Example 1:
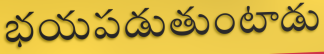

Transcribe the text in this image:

భయపడుతుంటాడు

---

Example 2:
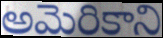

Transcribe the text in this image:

అమెరికాని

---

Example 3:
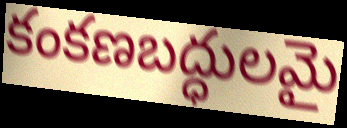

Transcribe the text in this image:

కంకణబద్ధులమై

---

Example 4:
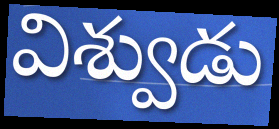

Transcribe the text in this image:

విశ్వుడు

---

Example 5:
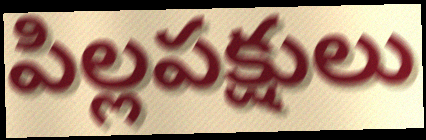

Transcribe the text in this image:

పిల్లపక్షులు